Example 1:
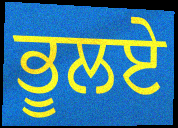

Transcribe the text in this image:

ਭੂਲਏ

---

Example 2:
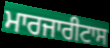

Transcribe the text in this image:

ਮਾਰਜਾਰੀਟਾਸ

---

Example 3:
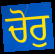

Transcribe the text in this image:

ਚੋਰੁ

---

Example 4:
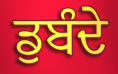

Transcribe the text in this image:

ਡੁਬੰਦੇ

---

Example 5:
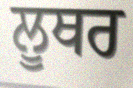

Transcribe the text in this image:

ਲੂਥਰ